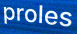
proles